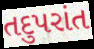
તદુપરાંત